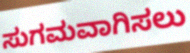
ಸುಗಮವಾಗಿಸಲು